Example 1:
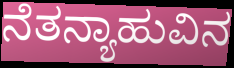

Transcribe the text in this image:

ನೆತನ್ಯಾಹುವಿನ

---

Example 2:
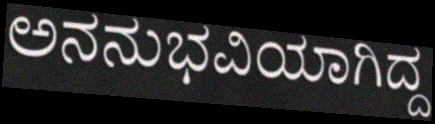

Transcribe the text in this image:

ಅನನುಭವಿಯಾಗಿದ್ದ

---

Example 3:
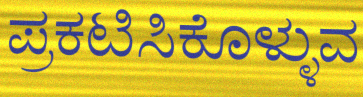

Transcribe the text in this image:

ಪ್ರಕಟಿಸಿಕೊಳ್ಳುವ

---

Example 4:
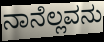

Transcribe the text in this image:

ನಾನೆಲ್ಲವನು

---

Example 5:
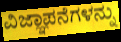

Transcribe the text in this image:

ವಿಜ್ಞಾಪನೆಗಳನ್ನು